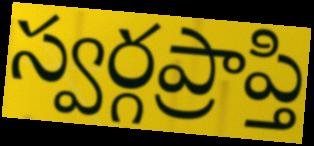
స్వర్గప్రాప్తి